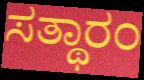
ಸತ್ಥಾರಂ